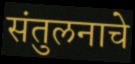
संतुलनाचे